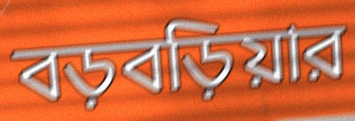
বড়বড়িয়ার